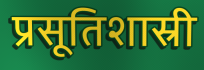
प्रसूतिशास्री